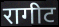
रागीट